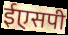
ईएसपी